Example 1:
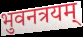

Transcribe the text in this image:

भुवनत्रयम्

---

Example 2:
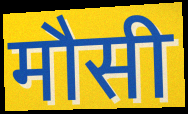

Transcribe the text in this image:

मौसी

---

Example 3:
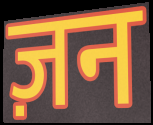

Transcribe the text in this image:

ज़न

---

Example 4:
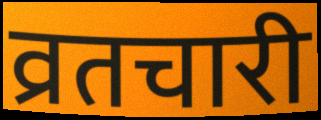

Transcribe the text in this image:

व्रतचारी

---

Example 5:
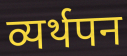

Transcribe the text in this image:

व्यर्थपन